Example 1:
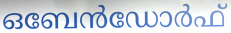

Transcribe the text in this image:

ഒബേൻഡോർഫ്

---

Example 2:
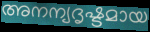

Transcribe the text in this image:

അനന്യദൃഷ്ടമായ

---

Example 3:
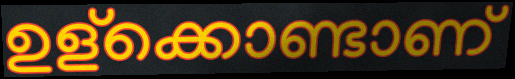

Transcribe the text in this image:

ഉള്ക്കൊണ്ടാണ്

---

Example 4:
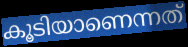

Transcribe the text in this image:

കൂടിയാണെന്നത്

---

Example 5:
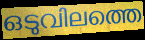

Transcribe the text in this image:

ഒടുവിലത്തെ